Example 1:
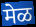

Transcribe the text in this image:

मेळ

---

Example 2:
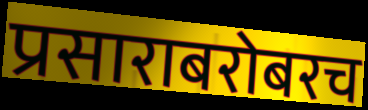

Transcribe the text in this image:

प्रसाराबरोबरच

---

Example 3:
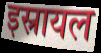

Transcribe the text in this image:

इस्रायल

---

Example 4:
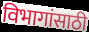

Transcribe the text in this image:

विभागांसाठी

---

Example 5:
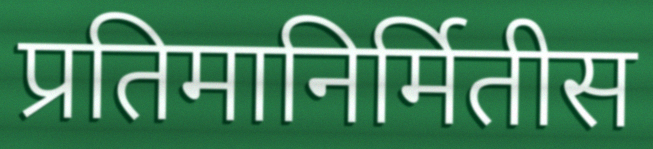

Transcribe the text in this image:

प्रतिमानिर्मितीस